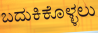
ಬದುಕಿಕೊಳ್ಳಲು